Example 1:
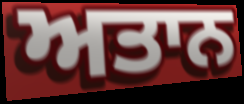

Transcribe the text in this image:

ਅਤਾਨ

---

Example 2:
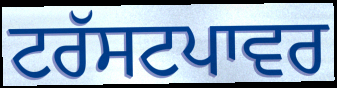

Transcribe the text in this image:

ਟਰੱਸਟਪਾਵਰ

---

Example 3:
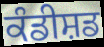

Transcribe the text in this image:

ਕੰਡੀਸ਼ਡ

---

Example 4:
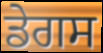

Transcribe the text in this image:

ਡੇਗਸ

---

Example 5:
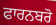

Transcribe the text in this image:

ਫਾਰਨਬਰੋ